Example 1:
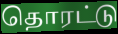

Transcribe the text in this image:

தொரட்டு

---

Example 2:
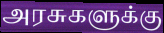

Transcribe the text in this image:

அரசுகளுக்கு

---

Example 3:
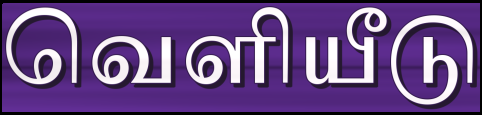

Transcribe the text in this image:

வெளியீடு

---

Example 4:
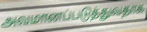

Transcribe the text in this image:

அவமானப்படுத்துவதாக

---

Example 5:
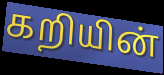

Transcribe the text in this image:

கறியின்